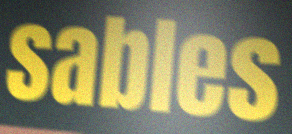
sables